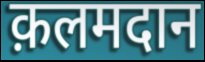
क़लमदान